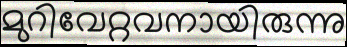
മുറിവേറ്റവനായിരുന്നു